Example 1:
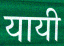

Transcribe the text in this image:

यायी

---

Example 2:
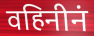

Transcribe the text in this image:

वहिनीनं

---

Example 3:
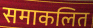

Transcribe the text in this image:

समाकलित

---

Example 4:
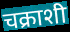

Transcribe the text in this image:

चक्राशी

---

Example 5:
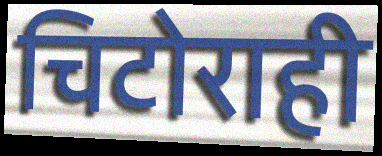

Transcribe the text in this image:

चिटोराही